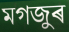
মগজুৰ